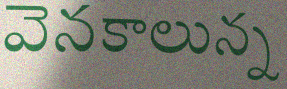
వెనకాలున్న